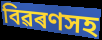
বিৱৰণসহ